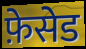
फ़ेसेड